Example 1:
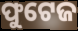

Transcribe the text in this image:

ଫୁଟେଜ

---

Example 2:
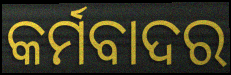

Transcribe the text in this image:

କର୍ମବାଦର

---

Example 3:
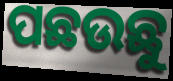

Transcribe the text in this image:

ପଛଉଛୁ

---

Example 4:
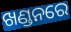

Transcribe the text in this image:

ଖଣ୍ଡନରେ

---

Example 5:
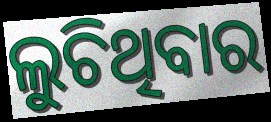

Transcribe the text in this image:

ଲୁଚିଥିବାର